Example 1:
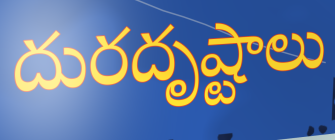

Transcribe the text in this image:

దురదృష్టాలు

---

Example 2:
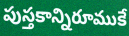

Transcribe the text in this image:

పుస్తకాన్నిరూముకే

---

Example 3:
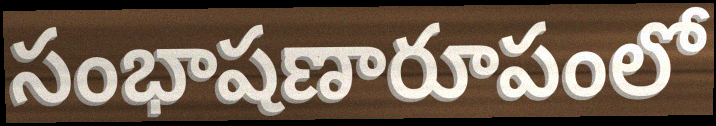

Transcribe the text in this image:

సంభాషణారూపంలో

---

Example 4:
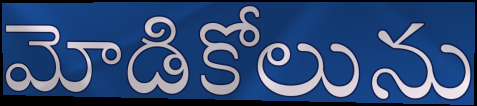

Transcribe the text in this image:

మోడికోలును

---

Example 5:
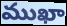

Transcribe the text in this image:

ముఖా